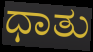
ಧಾತು